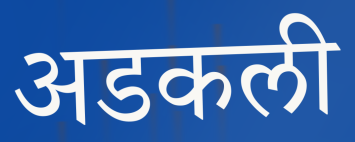
अडकली